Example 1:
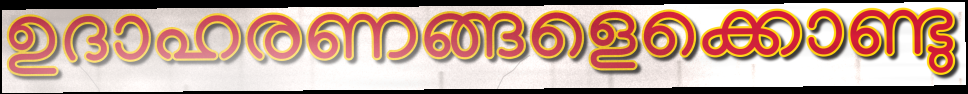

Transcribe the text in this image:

ഉദാഹരണങ്ങളെക്കൊണ്ടു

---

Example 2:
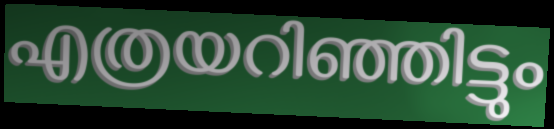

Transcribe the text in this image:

എത്രയറിഞ്ഞിട്ടും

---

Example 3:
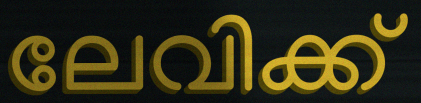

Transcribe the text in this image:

ലേവിക്ക്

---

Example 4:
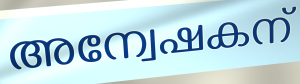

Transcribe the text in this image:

അന്വേഷകന്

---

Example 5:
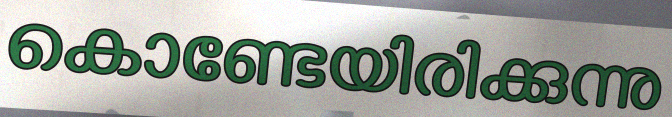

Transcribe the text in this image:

കൊണ്ടേയിരിക്കുന്നു